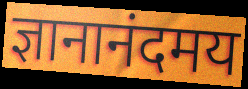
ज्ञानानंदमय